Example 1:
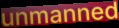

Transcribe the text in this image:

unmanned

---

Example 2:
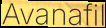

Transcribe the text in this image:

Avanafil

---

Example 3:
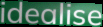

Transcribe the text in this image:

idealise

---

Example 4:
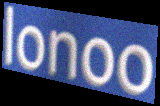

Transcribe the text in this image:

lonoo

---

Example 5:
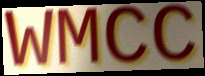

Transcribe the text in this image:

WMCC